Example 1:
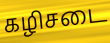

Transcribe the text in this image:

கழிசடை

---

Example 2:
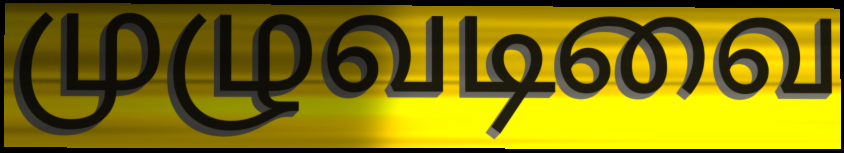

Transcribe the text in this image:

முழுவடிவை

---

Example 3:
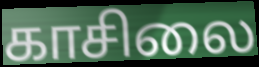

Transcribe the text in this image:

காசிலை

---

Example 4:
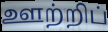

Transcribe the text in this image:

ஊற்றிப்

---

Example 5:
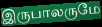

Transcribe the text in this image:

இருபாலருமே